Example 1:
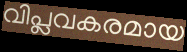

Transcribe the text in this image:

വിപ്ലവകരമായ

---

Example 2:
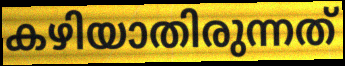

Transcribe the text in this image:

കഴിയാതിരുന്നത്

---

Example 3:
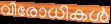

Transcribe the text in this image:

വിരോധികൾ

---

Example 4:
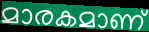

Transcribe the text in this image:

മാരകമാണ്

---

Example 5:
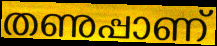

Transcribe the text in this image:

തണുപ്പാണ്